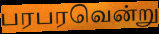
பரபரவென்று